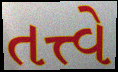
તત્ત્વે